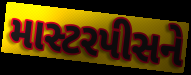
માસ્ટરપીસને